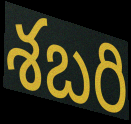
శబరి